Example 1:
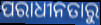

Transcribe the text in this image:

ପରାଧୀନତାରୁ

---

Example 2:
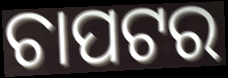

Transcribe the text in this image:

ଚାପଟର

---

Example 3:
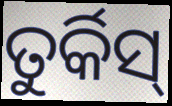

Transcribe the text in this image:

ତୁର୍କିସ୍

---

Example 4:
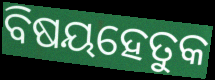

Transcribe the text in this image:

ବିଷୟହେତୁକ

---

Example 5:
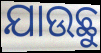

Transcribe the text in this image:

ଯାଉଛୁ